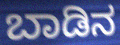
ಬಾಡಿನ